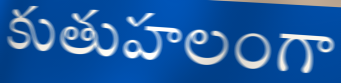
కుతుహలంగా